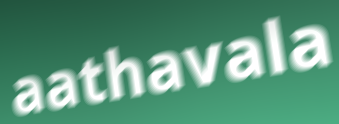
aathavala